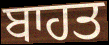
ਬਾਹਤ